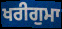
ਖਰੀਗੁਮਾ